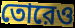
তোরেও